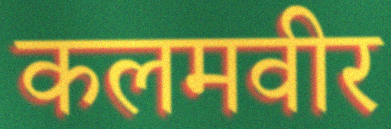
कलमवीर